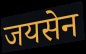
जयसेन